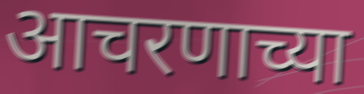
आचरणाच्या